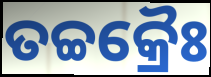
ତଚ୍ଚକ୍ରୈଃ